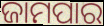
ଜାମପାର